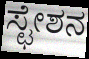
ಸ್ಟೇಶನ